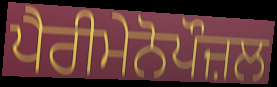
ਪੈਰੀਮੇਨੋਪੌਜ਼ਲ